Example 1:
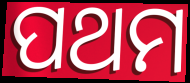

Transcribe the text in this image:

ପଥମ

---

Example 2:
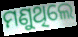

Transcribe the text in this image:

ମଣୁଥିଲେ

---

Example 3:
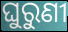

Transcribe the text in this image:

ଘୁରୁଣୀ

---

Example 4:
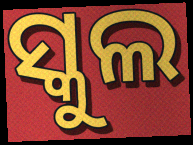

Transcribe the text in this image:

ସ୍କୁଲ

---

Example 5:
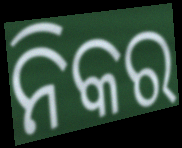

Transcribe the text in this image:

ନିକର